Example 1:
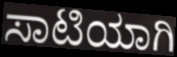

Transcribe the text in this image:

ಸಾಟಿಯಾಗಿ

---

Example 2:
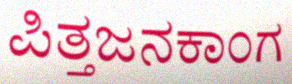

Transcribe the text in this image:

ಪಿತ್ತಜನಕಾಂಗ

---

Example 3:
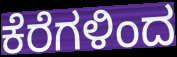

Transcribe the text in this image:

ಕೆರೆಗಳಿಂದ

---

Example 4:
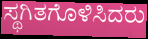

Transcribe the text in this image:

ಸ್ಥಗಿತಗೊಳಿಸಿದರು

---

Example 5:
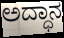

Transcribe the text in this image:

ಅದ್ಧಾನ